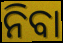
ନିବା